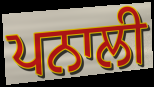
ਪਨਾਲੀ